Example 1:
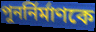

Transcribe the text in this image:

পুনর্নির্মাণকে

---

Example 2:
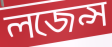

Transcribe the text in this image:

লজেন্স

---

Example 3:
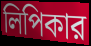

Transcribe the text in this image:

লিপিকার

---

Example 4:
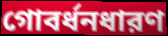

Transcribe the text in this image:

গোবর্ধনধারণ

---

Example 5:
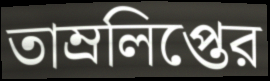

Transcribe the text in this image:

তাম্রলিপ্তের